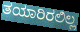
ತಯಾರಿರಲಿಲ್ಲ